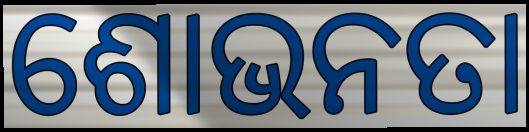
ଶୋଭନତା